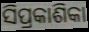
ସିପ୍ରକାଶିକା